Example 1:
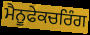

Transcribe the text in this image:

ਮੈਨੂਫੇਕਚਰਿੰਗ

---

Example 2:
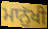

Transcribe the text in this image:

ਮਾਨੁੱਖੀ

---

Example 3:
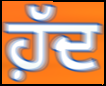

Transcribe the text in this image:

ਹ਼ੱਦ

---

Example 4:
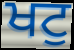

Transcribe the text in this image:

ਖਟੁ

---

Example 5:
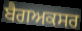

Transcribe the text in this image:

ਬੈਗਅਕਸਰ